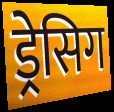
ड्रेसिग